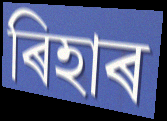
ৰিহাৰ